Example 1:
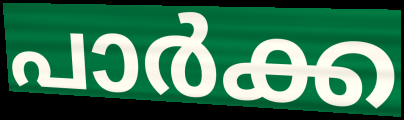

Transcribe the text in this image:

പാർക്ക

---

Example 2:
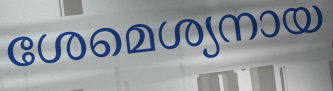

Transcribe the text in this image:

ശേമെശ്യനായ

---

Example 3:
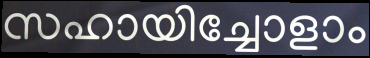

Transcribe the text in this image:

സഹായിച്ചോളാം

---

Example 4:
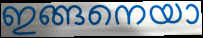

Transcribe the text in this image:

ഇങ്ങനെയാ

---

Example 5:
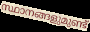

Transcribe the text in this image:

സ്ഥാനങ്ങളുമുണ്ട്